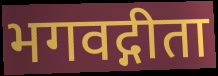
भगवद्गीता